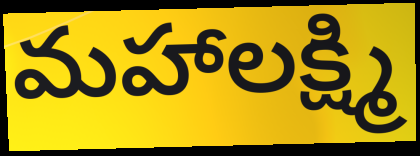
మహాలక్ష్మి